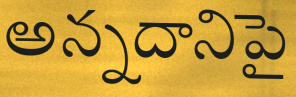
అన్నదానిపై